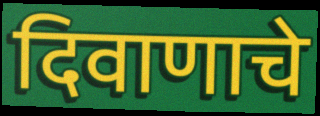
दिवाणाचे